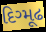
દિગ્મૂઢ